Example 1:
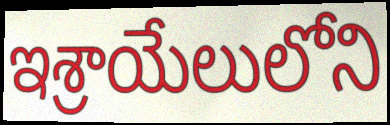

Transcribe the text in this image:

ఇశ్రాయేలులోని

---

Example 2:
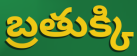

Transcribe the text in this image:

బ్రతుక్కి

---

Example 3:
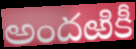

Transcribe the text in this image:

అందఱికీ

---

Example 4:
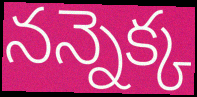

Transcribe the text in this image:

నన్నెక్క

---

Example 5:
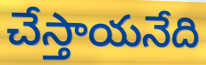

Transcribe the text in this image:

చేస్తాయనేది